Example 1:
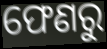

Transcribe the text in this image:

ଫେଣରୁ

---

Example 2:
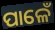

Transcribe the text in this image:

ପାଳେଁ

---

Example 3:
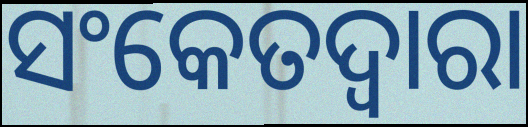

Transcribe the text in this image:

ସଂକେତଦ୍ୱାରା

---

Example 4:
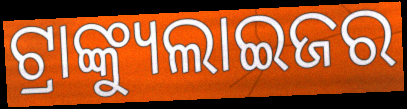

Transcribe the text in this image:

ଟ୍ରାଙ୍କ୍ୟୁଲାଇଜର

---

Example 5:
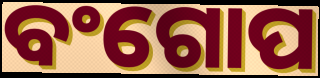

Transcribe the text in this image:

ବଂଗୋପ